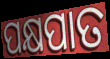
ପକ୍ଷପାତ